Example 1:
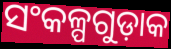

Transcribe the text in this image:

ସଂକଳ୍ପଗୁଡ଼ାକ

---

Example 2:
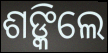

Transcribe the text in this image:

ଶଙ୍କିଲେ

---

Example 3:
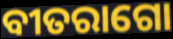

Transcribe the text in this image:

ବୀତରାଗୋ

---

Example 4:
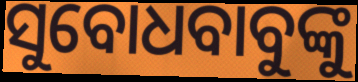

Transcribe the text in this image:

ସୁବୋଧବାବୁଙ୍କୁ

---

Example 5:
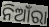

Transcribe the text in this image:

ନିଆଁରା